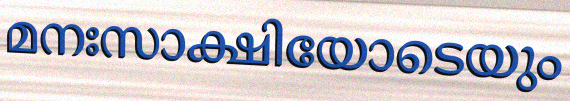
മനഃസാക്ഷിയോടെയും